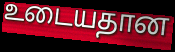
உடையதான